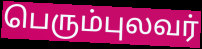
பெரும்புலவர்